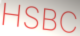
HSBC